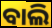
ବାଲି